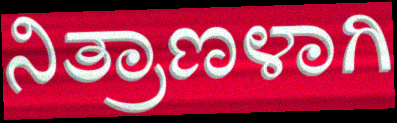
ನಿತ್ರಾಣಳಾಗಿ